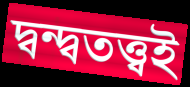
দ্বন্দ্বতত্ত্বই